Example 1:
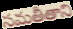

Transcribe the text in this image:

సమతీతాని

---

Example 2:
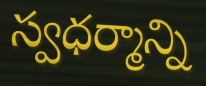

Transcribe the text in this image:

స్వధర్మాన్ని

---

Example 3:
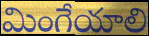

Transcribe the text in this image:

మింగేయాలి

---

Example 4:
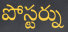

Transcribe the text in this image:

పోస్టర్ను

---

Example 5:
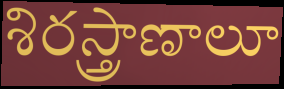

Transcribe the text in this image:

శిరస్త్రాణాలూ